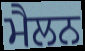
ਮੈਲਨ